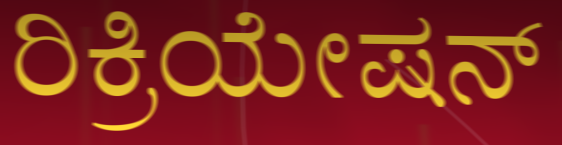
ರಿಕ್ರಿಯೇಷನ್